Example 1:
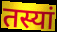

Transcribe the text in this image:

तस्यां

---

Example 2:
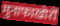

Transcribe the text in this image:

मुनाफाखोरों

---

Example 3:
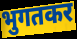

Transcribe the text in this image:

भुगतकर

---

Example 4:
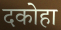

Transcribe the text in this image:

दकोहा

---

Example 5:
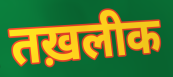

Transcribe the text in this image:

तख़लीक